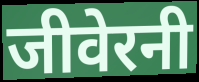
जीवेरनी